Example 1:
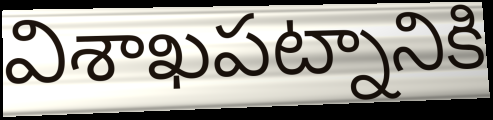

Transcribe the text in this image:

విశాఖపట్నానికి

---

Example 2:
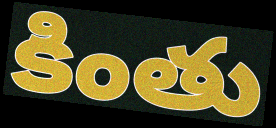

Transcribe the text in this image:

కింతు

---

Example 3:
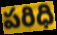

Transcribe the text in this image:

పరిధి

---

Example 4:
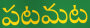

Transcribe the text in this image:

పటమట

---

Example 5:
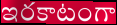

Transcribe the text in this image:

ఇరకాటంగా